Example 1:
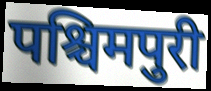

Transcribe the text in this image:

पश्चिमपुरी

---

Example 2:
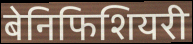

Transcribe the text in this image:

बेनिफिशियरी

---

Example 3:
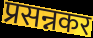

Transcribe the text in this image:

प्रसन्नकर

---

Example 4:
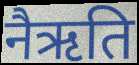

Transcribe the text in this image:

नैऋति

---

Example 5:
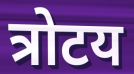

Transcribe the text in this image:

त्रोटय